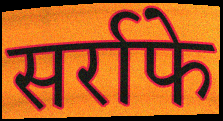
सर्राफे